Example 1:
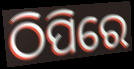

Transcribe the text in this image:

ଠିପିରେ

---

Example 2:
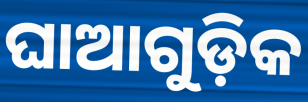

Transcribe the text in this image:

ଘାଆଗୁଡ଼ିକ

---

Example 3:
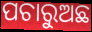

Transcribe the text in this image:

ପଚାରୁଅଛ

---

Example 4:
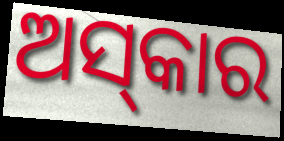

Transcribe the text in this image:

ଅସ୍‌କାର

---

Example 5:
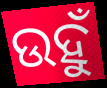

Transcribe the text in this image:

ଉହୁଁ